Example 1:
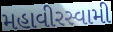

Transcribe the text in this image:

મહાવીરસ્વામી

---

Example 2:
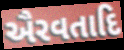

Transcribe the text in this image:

ઐરવતાદિ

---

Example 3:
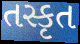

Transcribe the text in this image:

તસ્કૃત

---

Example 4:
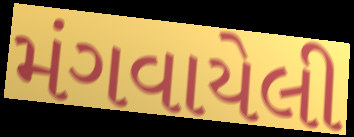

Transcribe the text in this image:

મંગવાયેલી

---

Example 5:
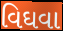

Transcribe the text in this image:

વિઘવા